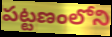
పట్టణంలోని